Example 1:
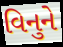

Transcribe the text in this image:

વિનુને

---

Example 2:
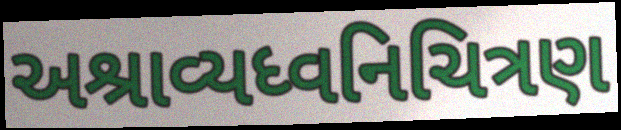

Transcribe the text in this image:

અશ્રાવ્યધ્વનિચિત્રણ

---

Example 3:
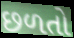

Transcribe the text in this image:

છળતો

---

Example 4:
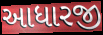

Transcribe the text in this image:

આધારજી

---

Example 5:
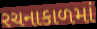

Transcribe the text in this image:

રચનાકાળમાં